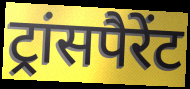
ट्रांसपैरेंट